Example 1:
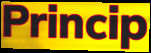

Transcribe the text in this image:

Princip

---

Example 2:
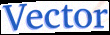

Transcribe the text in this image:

Vector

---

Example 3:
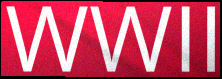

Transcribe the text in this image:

WWII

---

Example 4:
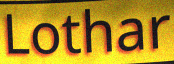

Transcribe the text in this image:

Lothar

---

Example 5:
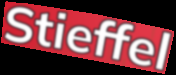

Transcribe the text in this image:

Stieffel